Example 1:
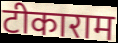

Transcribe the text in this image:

टीकाराम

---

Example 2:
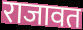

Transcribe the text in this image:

राजावत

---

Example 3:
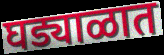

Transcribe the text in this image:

घड्याळात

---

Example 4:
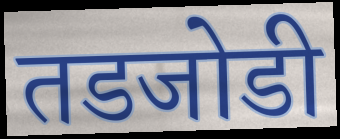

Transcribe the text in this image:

तडजोडी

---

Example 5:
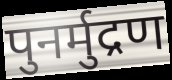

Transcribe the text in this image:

पुनर्मुद्रण